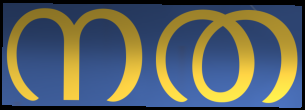
നത